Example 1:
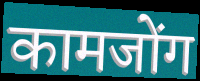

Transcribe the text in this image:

कामजोंग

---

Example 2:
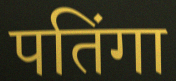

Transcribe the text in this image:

पतिंगा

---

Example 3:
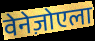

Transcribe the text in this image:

वेनेज़ोएला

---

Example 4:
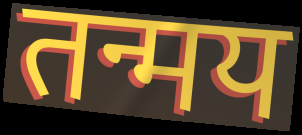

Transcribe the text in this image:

तन्मय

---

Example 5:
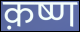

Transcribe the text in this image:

क़ष्ण